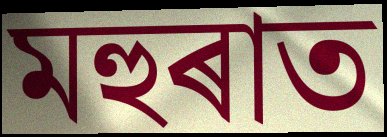
মহুৰাত